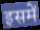
इसमें